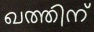
ഖത്തിന്